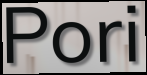
Pori